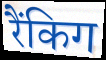
रैंकिग